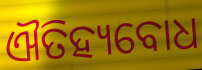
ଐତିହ୍ୟବୋଧ